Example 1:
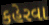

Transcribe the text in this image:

કહેરવા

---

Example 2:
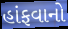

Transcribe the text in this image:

હાંફવાનો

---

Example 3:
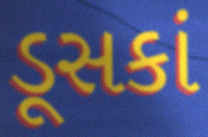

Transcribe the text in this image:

ડૂસકાં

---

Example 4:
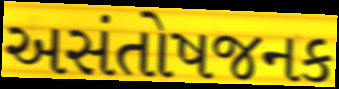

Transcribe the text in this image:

અસંતોષજનક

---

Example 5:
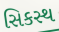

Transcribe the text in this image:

સિકસ્થ